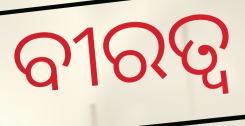
ବୀରତ୍ଵ